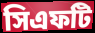
সিএফটি